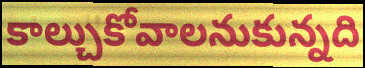
కాల్చుకోవాలనుకున్నది